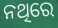
ନଥିରେ